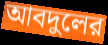
আবদুলের